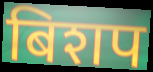
बिशप